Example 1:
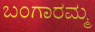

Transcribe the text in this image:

ಬಂಗಾರಮ್ಮ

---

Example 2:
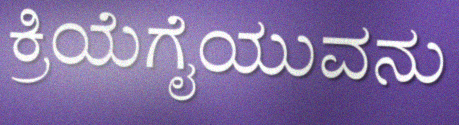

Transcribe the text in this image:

ಕ್ರಿಯೆಗೈಯುವನು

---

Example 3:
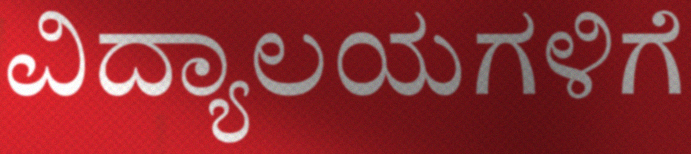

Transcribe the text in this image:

ವಿದ್ಯಾಲಯಗಳಿಗೆ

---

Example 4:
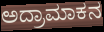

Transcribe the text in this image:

ಅದ್ರಾಮಾಕನ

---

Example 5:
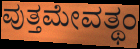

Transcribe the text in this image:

ವುತ್ತಮೇವತ್ಥಂ